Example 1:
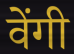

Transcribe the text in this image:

वेंगी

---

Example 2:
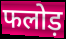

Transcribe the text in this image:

फलोड़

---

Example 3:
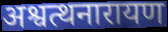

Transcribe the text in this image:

अश्वत्थनारायण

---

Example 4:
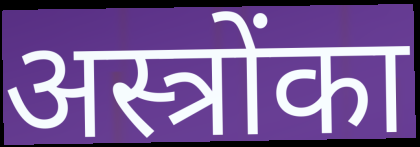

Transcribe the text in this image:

अस्त्रोंका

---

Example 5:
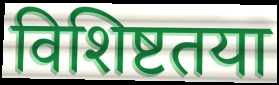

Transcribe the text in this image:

विशिष्टतया